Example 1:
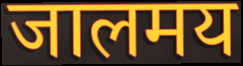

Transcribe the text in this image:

जालमय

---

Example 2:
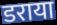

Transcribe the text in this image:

डराया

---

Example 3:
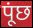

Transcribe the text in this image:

पूंछ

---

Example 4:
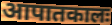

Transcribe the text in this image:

आपातकालः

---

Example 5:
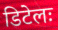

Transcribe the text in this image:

डिटेलः